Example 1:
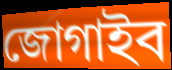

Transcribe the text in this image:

জোগাইব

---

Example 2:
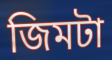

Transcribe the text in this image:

জিমটা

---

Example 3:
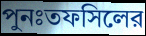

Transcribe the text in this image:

পুনঃতফসিলের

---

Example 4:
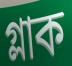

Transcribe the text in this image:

গ্লাক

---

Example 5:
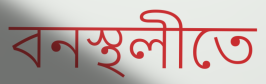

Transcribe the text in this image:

বনস্থলীতে